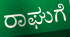
ರಾಘುಗೆ